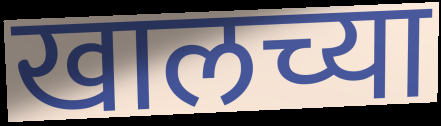
खालच्या